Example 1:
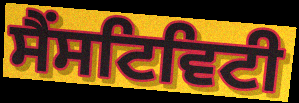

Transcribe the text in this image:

ਸੈਂਸਟਿਵਿਟੀ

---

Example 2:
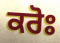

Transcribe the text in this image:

ਕਰੋਃ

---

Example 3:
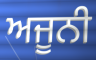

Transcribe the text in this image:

ਅਜੂਨੀ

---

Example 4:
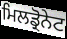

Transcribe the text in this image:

ਮਿਲਡ੍ਰੋਨੇਟ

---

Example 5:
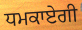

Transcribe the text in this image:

ਧਮਕਾਏਗੀ